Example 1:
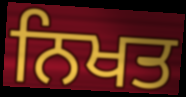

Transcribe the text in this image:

ਨਿਖਤ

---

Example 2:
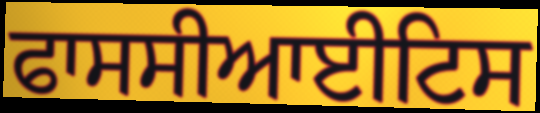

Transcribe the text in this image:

ਫਾਸਸੀਆਈਟਿਸ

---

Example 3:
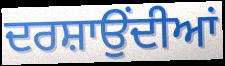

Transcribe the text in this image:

ਦਰਸ਼ਾਉਂਦੀਆਂ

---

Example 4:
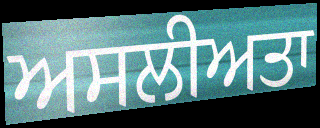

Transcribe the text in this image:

ਅਸਲੀਅਤਾ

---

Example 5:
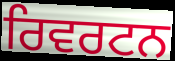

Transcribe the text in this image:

ਰਿਵਰਟਨ